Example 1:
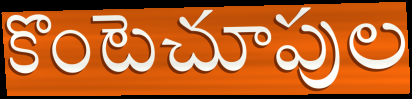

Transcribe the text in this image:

కొంటెచూపుల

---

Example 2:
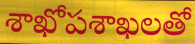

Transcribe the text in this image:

శాఖోపశాఖలతో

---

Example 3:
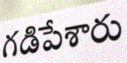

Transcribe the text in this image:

గడిపేశారు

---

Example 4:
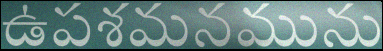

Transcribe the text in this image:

ఉపశమనమును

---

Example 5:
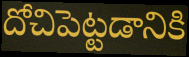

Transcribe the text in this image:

దోచిపెట్టడానికి